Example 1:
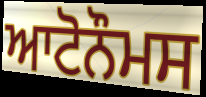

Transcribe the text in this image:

ਆਟੋਨੌਮਸ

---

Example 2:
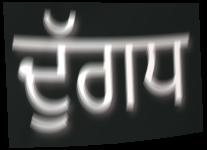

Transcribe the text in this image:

ਦੁੱਗਧ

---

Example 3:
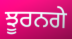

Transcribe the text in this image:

ਝੂਰਨਗੇ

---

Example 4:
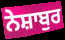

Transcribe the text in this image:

ਨੇਸ਼ਾਬੁਰ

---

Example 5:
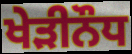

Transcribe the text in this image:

ਖੇੜੀਨੌਧ